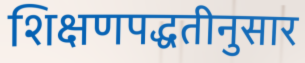
शिक्षणपद्धतीनुसार